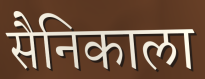
सैनिकाला